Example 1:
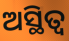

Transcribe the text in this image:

ଅସ୍ଥିତ୍ଵ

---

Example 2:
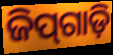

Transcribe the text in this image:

ଜିପ୍‍ଗାଡ଼ି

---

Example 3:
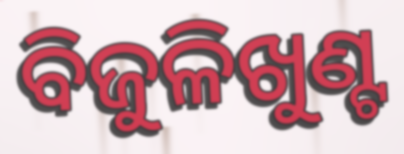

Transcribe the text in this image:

ବିଜୁଳିଖୁଣ୍ଟ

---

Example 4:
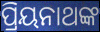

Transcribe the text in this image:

ପ୍ରିୟନାଥଙ୍କ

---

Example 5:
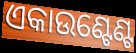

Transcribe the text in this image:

ଏକାଉଣ୍ଟେଣ୍ଟ